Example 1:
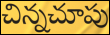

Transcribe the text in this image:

చిన్నచూపు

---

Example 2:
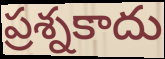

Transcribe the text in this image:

ప్రశ్నకాదు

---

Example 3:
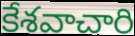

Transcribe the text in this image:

కేశవాచారి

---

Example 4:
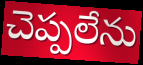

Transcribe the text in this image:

చెప్పలేను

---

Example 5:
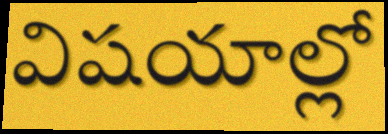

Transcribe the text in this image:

విషయాల్లో